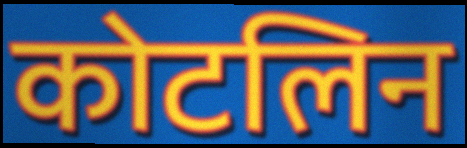
कोटलिन